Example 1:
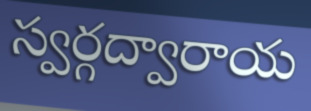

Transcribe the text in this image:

స్వర్గద్వారాయ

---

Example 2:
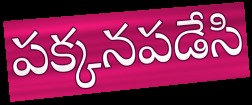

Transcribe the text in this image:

పక్కనపడేసి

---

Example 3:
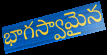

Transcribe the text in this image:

భాగస్వామైన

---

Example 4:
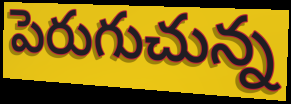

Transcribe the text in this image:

పెరుగుచున్న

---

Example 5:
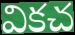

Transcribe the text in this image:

వికచ